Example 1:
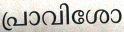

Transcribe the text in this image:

പ്രാവിശോ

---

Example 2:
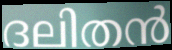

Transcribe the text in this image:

ദലിതൻ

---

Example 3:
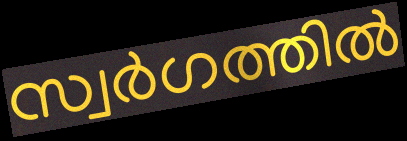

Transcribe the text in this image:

സ്വർഗത്തിൽ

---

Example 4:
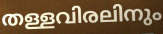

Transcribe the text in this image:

തള്ളവിരലിനും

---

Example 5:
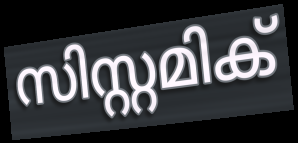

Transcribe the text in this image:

സിസ്റ്റമിക്